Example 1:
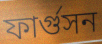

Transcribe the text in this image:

ফার্গুসন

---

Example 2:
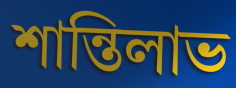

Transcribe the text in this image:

শান্তিলাভ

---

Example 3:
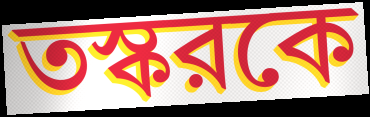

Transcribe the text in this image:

তস্করকে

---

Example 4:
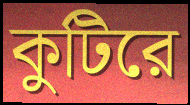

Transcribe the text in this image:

কুটিরে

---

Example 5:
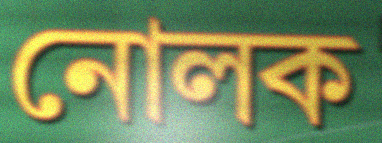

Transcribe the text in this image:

নোলক